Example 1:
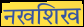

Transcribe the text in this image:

नखशिख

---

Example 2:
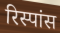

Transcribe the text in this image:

रिस्पांस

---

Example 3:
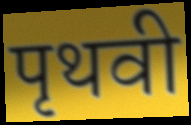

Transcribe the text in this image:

पृथवी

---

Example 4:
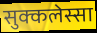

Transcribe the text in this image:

सुक्कलेस्सा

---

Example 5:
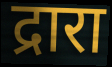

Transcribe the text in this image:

द्रारा